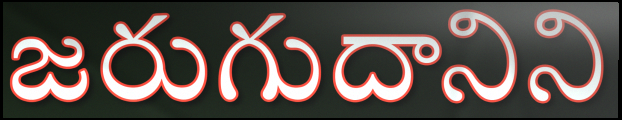
జరుగుదానిని